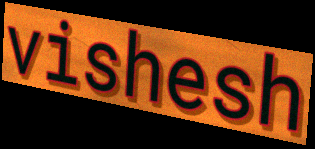
vishesh